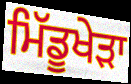
ਮਿੱਡੂਖੇੜਾ